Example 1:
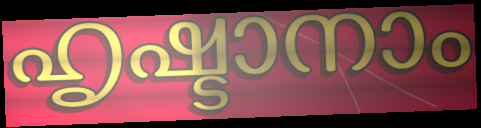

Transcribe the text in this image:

ഹൃഷ്ടാനാം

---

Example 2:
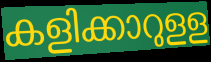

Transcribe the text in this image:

കളിക്കാറുളള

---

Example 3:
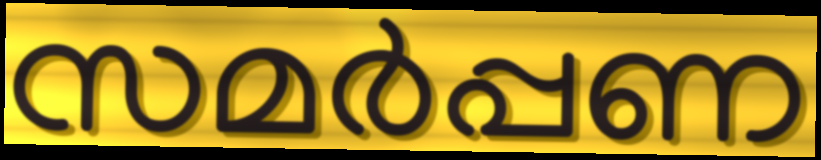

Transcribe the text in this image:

സമർപ്പണ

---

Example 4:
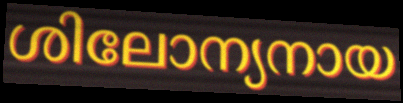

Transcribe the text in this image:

ശിലോന്യനായ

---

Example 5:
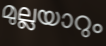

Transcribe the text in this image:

മുല്ലയാറും